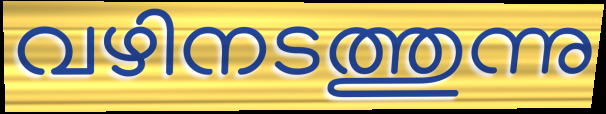
വഴിനടത്തുന്നു